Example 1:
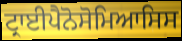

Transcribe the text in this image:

ਟ੍ਰਾਈਪੈਨੋਸੋਮਿਆਸਿਸ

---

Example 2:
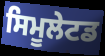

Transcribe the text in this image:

ਸਿਮੂਲੇਟਡ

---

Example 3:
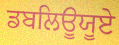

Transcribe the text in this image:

ਡਬਲਿਊਯੂਏ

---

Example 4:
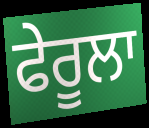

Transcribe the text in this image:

ਫੇਰੂਲਾ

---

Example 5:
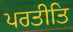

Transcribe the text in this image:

ਪਰਤੀਤਿ